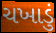
ચખાડું